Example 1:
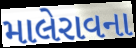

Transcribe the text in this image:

માલેરાવના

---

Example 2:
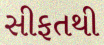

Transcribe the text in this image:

સીફતથી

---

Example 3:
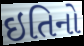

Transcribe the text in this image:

ઇતિનો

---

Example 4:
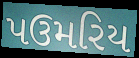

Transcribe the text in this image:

પઉમરિય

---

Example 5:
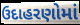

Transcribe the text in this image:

ઉદાહરણોમાં